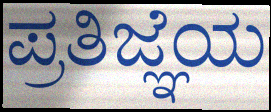
ಪ್ರತಿಜ್ಞೆಯ